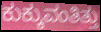
ಕುಕ್ಕುವಂತಿತ್ತು